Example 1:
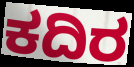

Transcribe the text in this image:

ಕದಿರ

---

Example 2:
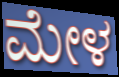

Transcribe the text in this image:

ಮೇಳ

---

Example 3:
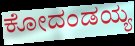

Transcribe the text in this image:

ಕೋದಂಡಯ್ಯ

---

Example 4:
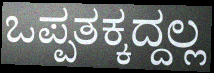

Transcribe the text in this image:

ಒಪ್ಪತಕ್ಕದ್ದಲ್ಲ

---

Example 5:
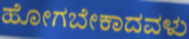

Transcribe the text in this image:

ಹೋಗಬೇಕಾದವಳು